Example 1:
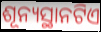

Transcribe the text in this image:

ଶୂନ୍ୟସ୍ଥାନଟିଏ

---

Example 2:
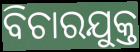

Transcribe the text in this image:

ବିଚାରଯୁକ୍ତ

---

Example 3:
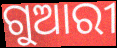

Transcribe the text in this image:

ଗୁଆରୀ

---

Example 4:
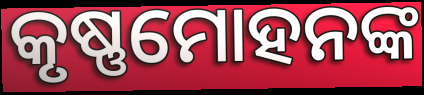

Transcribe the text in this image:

କୃଷ୍ଣମୋହନଙ୍କ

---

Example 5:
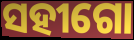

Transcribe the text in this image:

ସହୀଗୋ